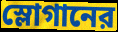
স্লোগানের